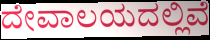
ದೇವಾಲಯದಲ್ಲಿವೆ